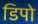
डिपो